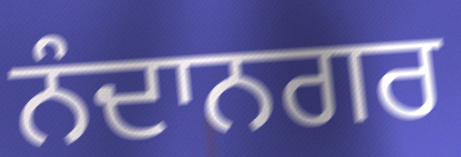
ਨੰਦਾਨਗਰ